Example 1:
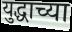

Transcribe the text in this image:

युद्धाच्या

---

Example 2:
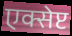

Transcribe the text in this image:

एक्सेप्ट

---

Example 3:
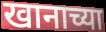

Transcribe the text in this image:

खानाच्या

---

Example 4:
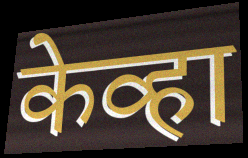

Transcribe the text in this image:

केव्हा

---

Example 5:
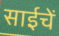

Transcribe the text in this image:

साईचें